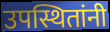
उपस्थितांनी